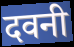
दवनी